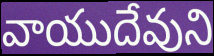
వాయుదేవుని